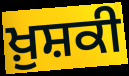
ਖ਼ੁਸ਼ਕੀ